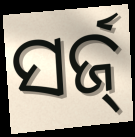
ସର୍ଜ୍